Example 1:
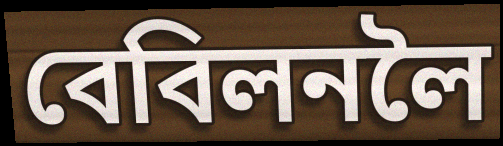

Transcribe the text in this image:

বেবিলনলৈ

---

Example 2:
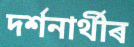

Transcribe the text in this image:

দৰ্শনাৰ্থীৰ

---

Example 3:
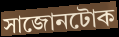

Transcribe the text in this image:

সাজোনটোক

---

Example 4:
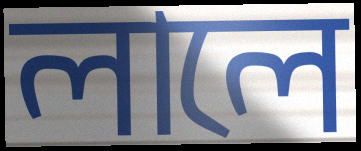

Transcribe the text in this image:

লালে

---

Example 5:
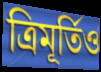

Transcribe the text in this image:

ত্ৰিমূৰ্তিও